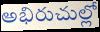
అభిరుచుల్లో